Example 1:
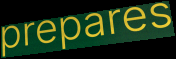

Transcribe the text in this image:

prepares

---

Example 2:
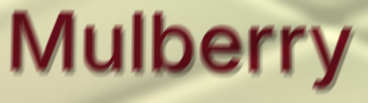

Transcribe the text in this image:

Mulberry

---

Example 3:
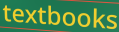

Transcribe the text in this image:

textbooks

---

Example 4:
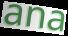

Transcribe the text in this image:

ana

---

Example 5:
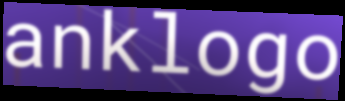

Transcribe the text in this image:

anklogo